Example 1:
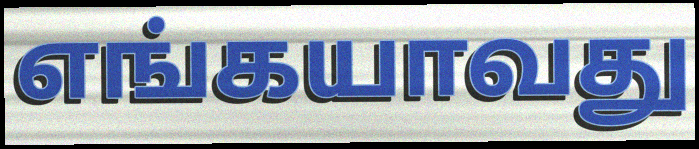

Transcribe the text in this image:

எங்கயாவது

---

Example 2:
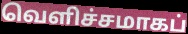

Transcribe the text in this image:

வெளிச்சமாகப்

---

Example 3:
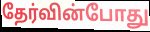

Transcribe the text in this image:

தேர்வின்போது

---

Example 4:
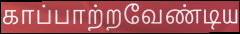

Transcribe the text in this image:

காப்பாற்றவேண்டிய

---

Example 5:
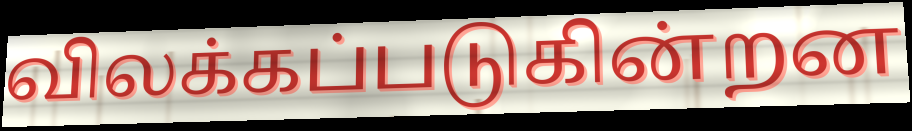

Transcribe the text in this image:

விலக்கப்படுகின்றன